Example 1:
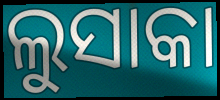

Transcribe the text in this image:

ଲୁସାକା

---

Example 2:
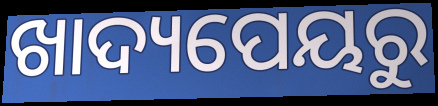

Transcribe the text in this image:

ଖାଦ୍ୟପେୟରୁ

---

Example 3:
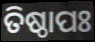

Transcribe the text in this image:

ତିଷ୍ଠାପଃ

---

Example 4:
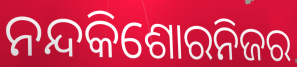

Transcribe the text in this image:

ନନ୍ଦକିଶୋରନିଜର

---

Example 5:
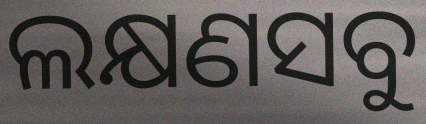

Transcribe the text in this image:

ଲକ୍ଷଣସବୁ